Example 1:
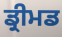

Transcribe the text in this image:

ਡ੍ਰੀਮਡ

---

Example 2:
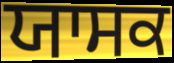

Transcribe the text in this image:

ਯਾਸਕ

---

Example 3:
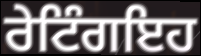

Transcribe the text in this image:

ਰੇਟਿੰਗਇਹ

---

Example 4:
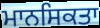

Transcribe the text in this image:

ਮਾਨਸਿਕਤਾ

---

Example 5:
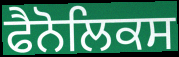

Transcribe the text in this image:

ਫੈਨੋਲਿਕਸ